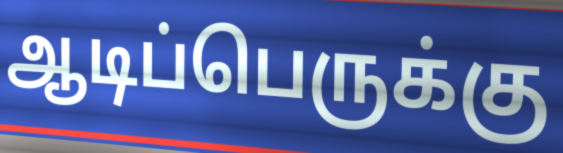
ஆடிப்பெருக்கு